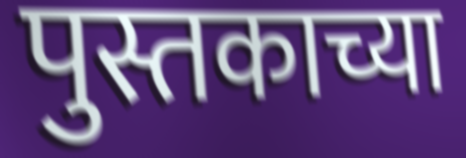
पुस्तकाच्या